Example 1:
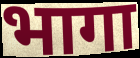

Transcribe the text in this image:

भागा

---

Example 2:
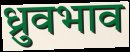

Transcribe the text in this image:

ध्रुवभाव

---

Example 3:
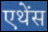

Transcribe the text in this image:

एथेंस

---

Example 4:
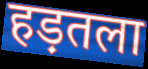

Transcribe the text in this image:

हड़तला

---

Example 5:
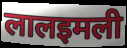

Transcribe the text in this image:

लालइमली